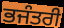
ਭਜੰਤਰੀ